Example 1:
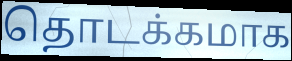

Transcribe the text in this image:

தொடக்கமாக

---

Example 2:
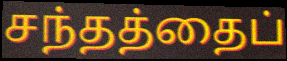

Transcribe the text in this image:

சந்தத்தைப்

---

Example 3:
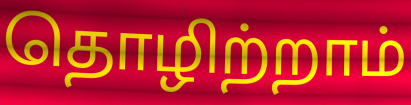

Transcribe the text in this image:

தொழிற்றாம்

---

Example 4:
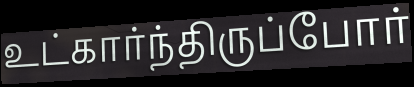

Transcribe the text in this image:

உட்கார்ந்திருப்போர்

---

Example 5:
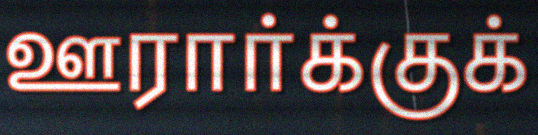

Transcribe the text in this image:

ஊரார்க்குக்